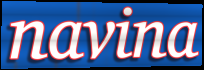
navina